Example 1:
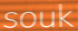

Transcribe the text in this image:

souk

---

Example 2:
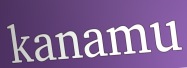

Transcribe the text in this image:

kanamu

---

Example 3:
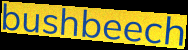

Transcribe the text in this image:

bushbeech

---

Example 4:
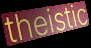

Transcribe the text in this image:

theistic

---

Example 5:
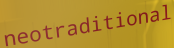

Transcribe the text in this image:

neotraditional